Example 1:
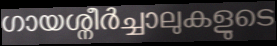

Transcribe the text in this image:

ഗായശ്നീർച്ചാലുകളുടെ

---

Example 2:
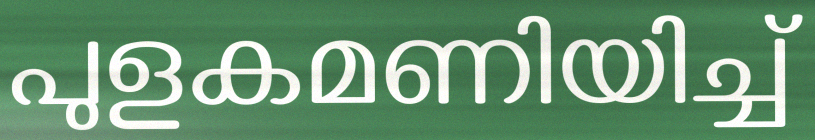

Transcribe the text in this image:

പുളകമണിയിച്ച്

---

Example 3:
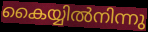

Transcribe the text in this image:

കൈയ്യിൽനിന്നു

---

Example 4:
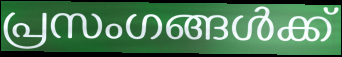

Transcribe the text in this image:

പ്രസംഗങ്ങൾക്ക്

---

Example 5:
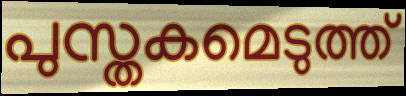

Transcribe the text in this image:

പുസ്തകമെടുത്ത്